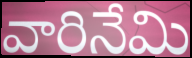
వారినేమి